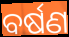
ବର୍ଷଣ